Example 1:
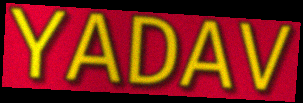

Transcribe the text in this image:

YADAV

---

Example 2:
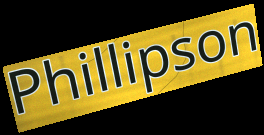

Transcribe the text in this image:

Phillipson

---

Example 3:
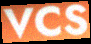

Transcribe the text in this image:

VCS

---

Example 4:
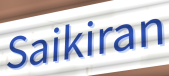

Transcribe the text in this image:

Saikiran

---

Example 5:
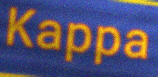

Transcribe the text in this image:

Kappa